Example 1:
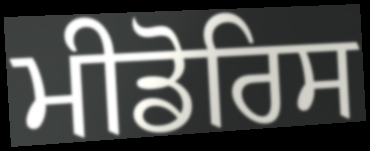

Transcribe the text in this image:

ਮੀਡੋਰਿਸ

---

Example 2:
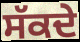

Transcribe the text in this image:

ਸੱਕਦੇ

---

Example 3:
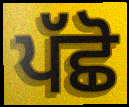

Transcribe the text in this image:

ਪੱਛੋ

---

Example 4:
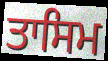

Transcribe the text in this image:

ਤਾਸਿਮ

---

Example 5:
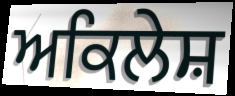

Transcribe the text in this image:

ਅਕਿਲੇਸ਼